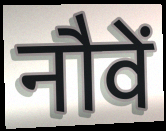
नौवें